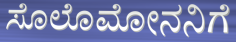
ಸೊಲೊಮೋನನಿಗೆ